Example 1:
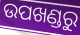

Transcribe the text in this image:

ଉପଖଣ୍ଡରୁ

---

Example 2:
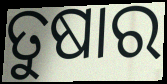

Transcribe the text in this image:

ତୁଷାର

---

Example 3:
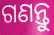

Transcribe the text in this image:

ଗଣନ୍ତୁ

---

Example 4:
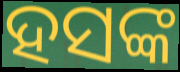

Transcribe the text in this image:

ହସଙ୍କ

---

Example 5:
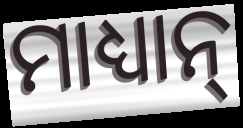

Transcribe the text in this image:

ମାଧ୍ୟାନ୍